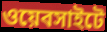
ওয়েবসাইটে